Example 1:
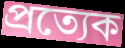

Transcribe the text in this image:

প্ৰত্য়েক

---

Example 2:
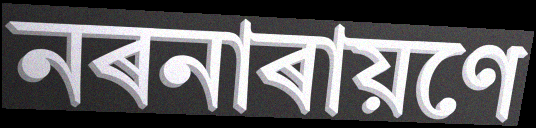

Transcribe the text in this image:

নৰনাৰায়ণে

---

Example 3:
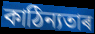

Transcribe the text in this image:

কাঠিন্যতাৰ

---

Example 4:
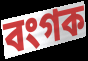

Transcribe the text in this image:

বংগক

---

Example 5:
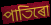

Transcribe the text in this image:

পাতিৰো